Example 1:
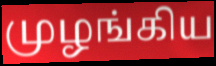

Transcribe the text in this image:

முழங்கிய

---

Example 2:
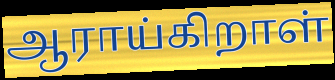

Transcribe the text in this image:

ஆராய்கிறாள்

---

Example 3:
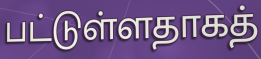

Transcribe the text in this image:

பட்டுள்ளதாகத்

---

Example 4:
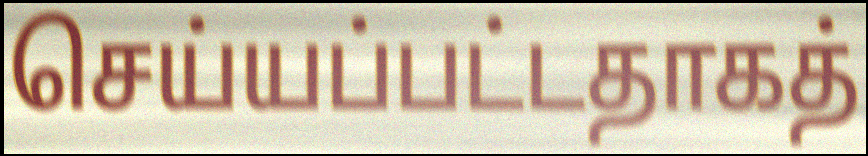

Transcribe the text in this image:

செய்யப்பட்டதாகத்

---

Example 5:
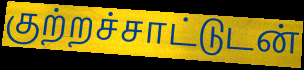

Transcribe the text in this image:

குற்றச்சாட்டுடன்